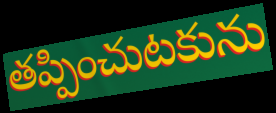
తప్పించుటకును